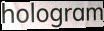
hologram